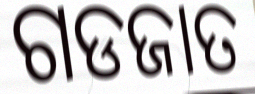
ଗଡଜାତ